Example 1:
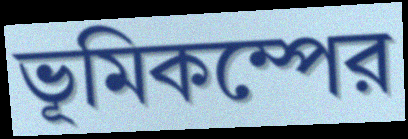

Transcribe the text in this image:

ভূমিকম্পের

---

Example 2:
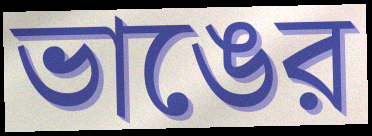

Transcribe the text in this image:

ভাঙের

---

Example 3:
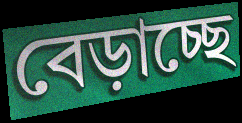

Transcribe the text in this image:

বেড়াচ্ছে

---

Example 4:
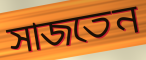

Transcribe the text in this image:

সাজতেন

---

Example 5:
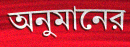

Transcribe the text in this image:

অনুমানের